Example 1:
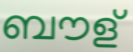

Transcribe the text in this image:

ബൗള്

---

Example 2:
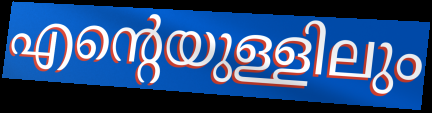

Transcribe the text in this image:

എന്റെയുള്ളിലും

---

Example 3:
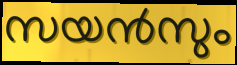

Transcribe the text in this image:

സയൻസും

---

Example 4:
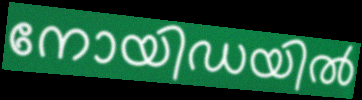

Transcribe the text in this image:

നോയിഡയിൽ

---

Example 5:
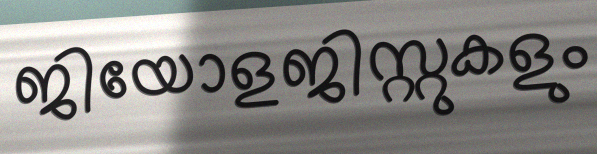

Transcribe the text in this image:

ജിയോളജിസ്റ്റുകളും